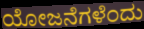
ಯೋಜನೆಗಳೆಂದು